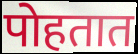
पोहतात